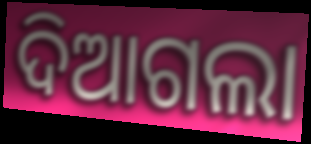
ଦିଆଗଲା